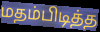
மதம்பிடித்த